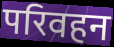
परिवहन